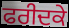
ਫਰੀਦਕੇ